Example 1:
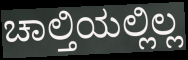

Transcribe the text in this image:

ಚಾಲ್ತಿಯಲ್ಲಿಲ್ಲ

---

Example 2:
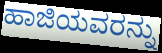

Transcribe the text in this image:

ಹಾಜಿಯವರನ್ನು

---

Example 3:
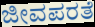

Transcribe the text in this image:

ಜೀವಪರತೆ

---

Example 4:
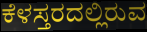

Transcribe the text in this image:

ಕೆಳಸ್ತರದಲ್ಲಿರುವ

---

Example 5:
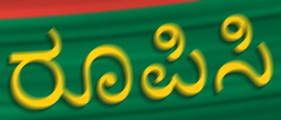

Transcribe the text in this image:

ರೂಪಿಸಿ